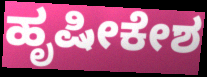
ಹೃಷೀಕೇಶ